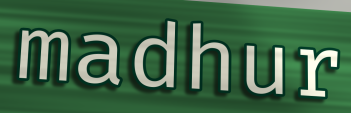
madhur